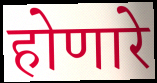
होणारे